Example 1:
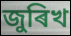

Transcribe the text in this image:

জুৰিখ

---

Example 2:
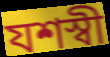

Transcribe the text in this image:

যশস্বী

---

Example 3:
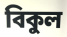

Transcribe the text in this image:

বিকুল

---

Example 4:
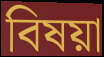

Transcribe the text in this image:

বিষয়া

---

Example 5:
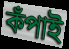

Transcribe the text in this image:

কঁপাই